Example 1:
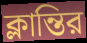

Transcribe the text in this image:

ক্লান্তির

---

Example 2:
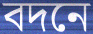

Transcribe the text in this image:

বদনে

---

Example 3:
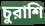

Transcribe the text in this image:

চুরাশি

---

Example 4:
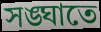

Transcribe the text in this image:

সঙ্ঘাতে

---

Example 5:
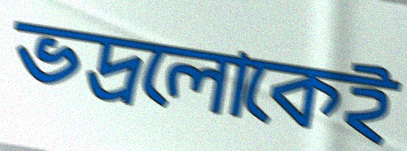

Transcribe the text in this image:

ভদ্রলোকেই